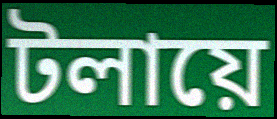
টলায়ে